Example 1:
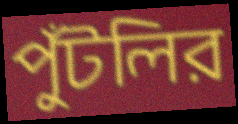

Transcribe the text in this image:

পুঁটলির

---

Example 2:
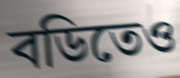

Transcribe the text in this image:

বডিতেও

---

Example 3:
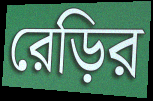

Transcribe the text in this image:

রেড়ির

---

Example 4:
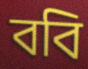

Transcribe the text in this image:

ববি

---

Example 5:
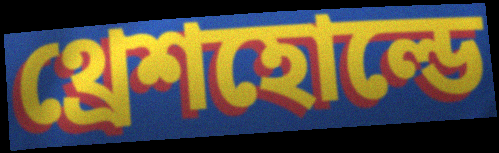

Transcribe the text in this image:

থ্রেশহোল্ডে